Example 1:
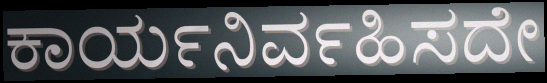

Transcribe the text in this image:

ಕಾರ್ಯನಿರ್ವಹಿಸದೇ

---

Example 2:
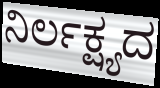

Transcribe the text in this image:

ನಿರ್ಲಕ್ಷ್ಯದ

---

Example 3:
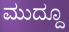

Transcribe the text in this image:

ಮುದ್ದೂ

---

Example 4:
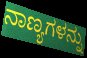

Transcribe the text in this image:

ನಾಣ್ಯಗಳನ್ನು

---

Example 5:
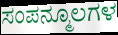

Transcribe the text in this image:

ಸಂಪನ್ಮೂಲಗಳ